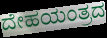
ದೇಹಯಂತ್ರದ